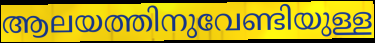
ആലയത്തിനുവേണ്ടിയുള്ള